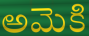
అమెకి